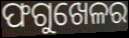
ଫଗୁଖେଳର